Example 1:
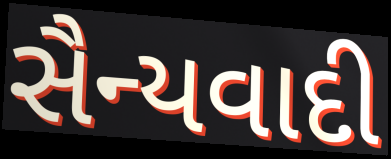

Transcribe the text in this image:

સૈન્યવાદી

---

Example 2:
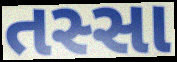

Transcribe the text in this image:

તસ્સા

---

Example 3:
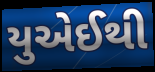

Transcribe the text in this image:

યુએઈથી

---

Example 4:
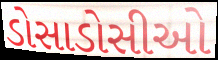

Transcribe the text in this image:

ડોસાડોસીઓ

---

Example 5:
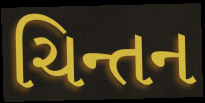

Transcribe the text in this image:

ચિન્તન